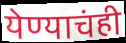
येण्याचंही